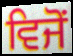
ਵਿਜੋਂ